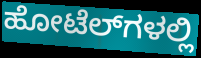
ಹೋಟೆಲ್‍ಗಳಲ್ಲಿ